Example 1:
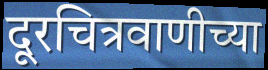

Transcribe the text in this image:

दूरचित्रवाणीच्या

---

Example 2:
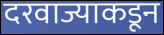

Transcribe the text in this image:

दरवाज्याकडून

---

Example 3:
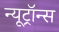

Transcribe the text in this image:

न्यूट्रॉन्स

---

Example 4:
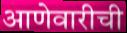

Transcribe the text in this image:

आणेवारीची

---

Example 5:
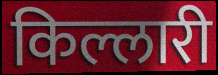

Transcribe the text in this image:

किल्लारी